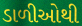
ડાળીઓથી